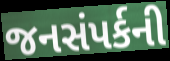
જનસંપર્કની